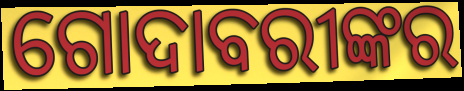
ଗୋଦାବରୀଙ୍କର